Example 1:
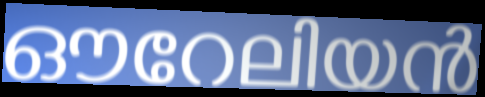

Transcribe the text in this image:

ഔറേലിയൻ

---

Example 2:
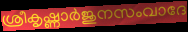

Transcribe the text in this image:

ശ്രീകൃഷ്ണാർജുനസംവാദേ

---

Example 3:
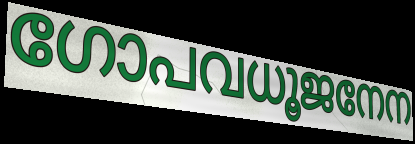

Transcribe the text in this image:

ഗോപവധൂജനേന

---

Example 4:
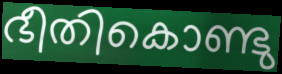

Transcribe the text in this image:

ഭീതികൊണ്ടു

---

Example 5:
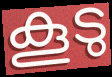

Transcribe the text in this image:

കൂടു